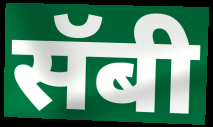
सॅबी